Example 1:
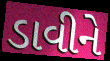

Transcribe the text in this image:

ડાવીને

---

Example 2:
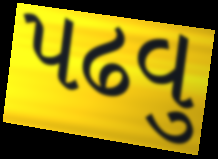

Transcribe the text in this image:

પઢવુ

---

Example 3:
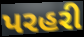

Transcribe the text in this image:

પરહરી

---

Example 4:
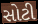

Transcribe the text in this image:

સોટી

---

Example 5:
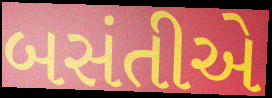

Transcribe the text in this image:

બસંતીએ